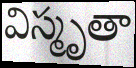
విస్మృతా